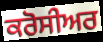
ਕਰੋਸੀਅਰ